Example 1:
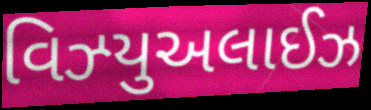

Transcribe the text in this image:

વિઝ્યુઅલાઈઝ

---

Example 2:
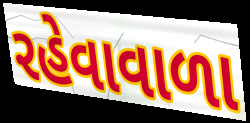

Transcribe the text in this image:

રહેવાવાળા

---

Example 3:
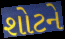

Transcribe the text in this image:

શોટને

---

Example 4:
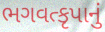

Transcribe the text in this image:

ભગવત્કૃપાનું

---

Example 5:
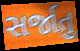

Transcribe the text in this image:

સર્જાતુ